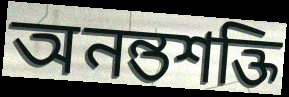
অনন্তশক্তি